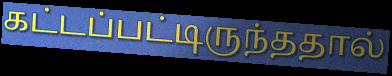
கட்டப்பட்டிருந்ததால்